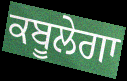
ਕਬੂਲੇਗਾ